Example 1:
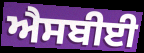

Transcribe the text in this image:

ਐਸਬੀਈ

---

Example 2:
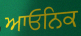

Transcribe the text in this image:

ਆਓਨਿਕ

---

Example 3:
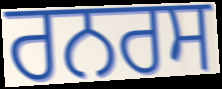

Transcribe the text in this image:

ਰਨਰਸ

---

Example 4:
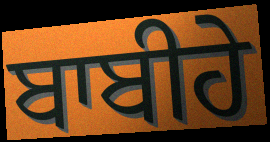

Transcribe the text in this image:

ਬਾਬੀਹੇ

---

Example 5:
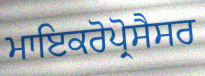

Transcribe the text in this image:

ਮਾਇਕਰੋਪ੍ਰੋਸੈਸਰ